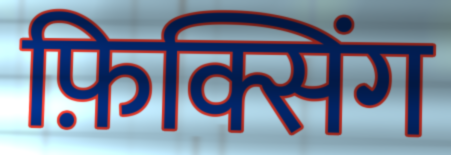
फ़िक्सिंग